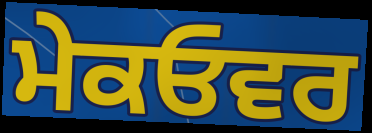
ਮੇਕਓਵਰ